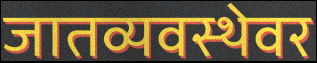
जातव्यवस्थेवर